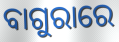
ବାଗୁରାରେ